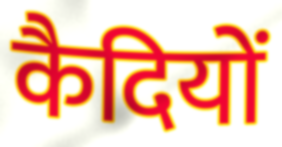
कैदियों